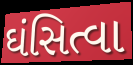
ઘંસિત્વા